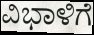
ವಿಭಾಳಿಗೆ